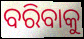
ବରିବାକୁ